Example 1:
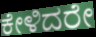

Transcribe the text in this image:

ಕೇಳಿದರೇ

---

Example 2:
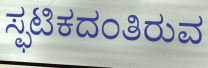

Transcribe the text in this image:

ಸ್ಫಟಿಕದಂತಿರುವ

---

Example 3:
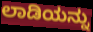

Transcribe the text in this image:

ಲಾಡಿಯನ್ನು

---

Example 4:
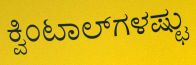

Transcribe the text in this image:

ಕ್ವಿಂಟಾಲ್‌ಗಳಷ್ಟು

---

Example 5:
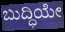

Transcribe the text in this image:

ಬುದ್ಧಿಯೇ